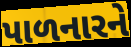
પાળનારને